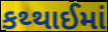
કથ્થાઈમાં